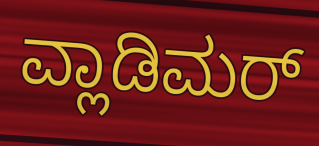
ವ್ಲಾಡಿಮರ್